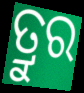
ତ୍ରୁର